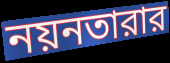
নয়নতারার